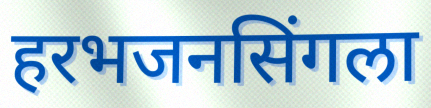
हरभजनसिंगला